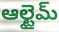
ఆల్టైమ్